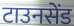
टाउनसेंड